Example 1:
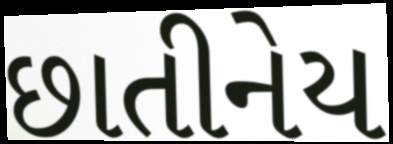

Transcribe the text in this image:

છાતીનેય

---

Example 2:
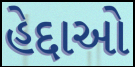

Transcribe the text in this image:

હેદ્દાઓ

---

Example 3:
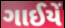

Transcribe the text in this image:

ગાઈયેં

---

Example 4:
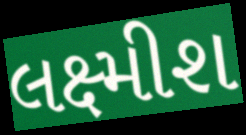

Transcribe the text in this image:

લક્ષ્મીશ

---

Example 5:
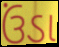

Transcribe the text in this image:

ઉંડા